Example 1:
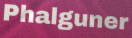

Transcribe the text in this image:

Phalguner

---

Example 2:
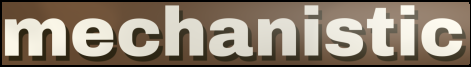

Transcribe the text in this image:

mechanistic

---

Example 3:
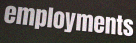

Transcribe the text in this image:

employments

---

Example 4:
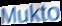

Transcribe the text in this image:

Mukto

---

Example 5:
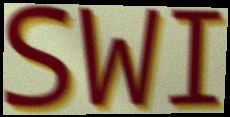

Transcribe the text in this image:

SWI